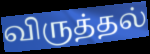
விருத்தல்